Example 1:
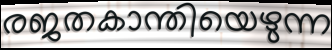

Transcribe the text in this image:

രജതകാന്തിയെഴുന്ന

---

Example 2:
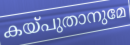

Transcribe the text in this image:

കയ്പുതാനുമേ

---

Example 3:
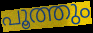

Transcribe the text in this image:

പൂത്തും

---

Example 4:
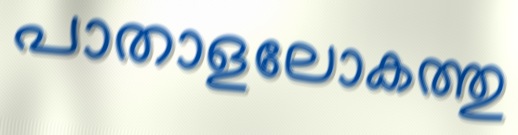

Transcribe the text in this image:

പാതാളലോകത്തു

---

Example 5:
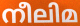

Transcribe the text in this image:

നീലിമ